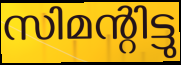
സിമന്റിട്ടു